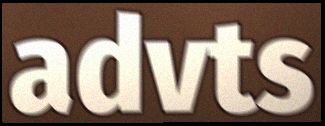
advts